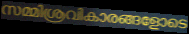
സമ്മിശ്രവികാരങ്ങളോടെ